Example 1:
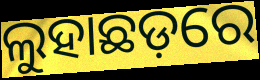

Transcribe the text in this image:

ଲୁହାଛଡ଼ରେ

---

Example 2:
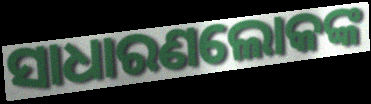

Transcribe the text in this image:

ସାଧାରଣଲୋକଙ୍କ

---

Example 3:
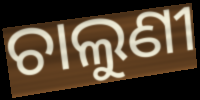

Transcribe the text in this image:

ଚାଲୁଣୀ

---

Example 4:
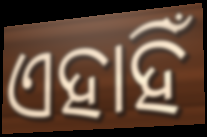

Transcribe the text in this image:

ଏହାହିଁ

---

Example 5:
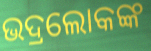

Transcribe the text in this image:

ଭଦ୍ରଲୋକଙ୍କ